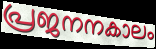
പ്രജനനകാലം